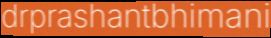
drprashantbhimani